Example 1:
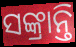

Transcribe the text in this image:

ସଙ୍କ୍ରାନ୍ତି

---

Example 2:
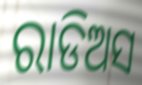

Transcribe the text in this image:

ରାଡିଅସ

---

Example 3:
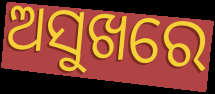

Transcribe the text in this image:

ଅସୁଖରେ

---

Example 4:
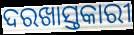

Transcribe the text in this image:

ଦରଖାସ୍ତକାରୀ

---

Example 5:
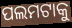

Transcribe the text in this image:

ପଲମଟାକୁ